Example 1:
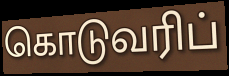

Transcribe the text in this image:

கொடுவரிப்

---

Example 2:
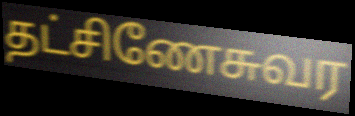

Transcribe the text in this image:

தட்சிணேசுவர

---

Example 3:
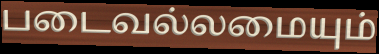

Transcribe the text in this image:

படைவல்லமையும்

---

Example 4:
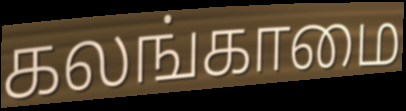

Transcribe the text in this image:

கலங்காமை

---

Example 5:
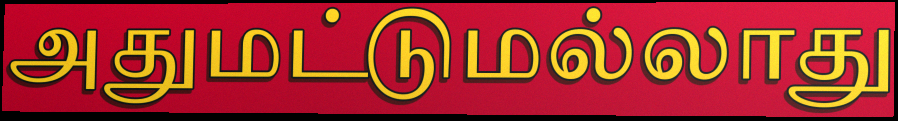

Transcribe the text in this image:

அதுமட்டுமல்லாது